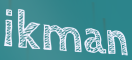
ikman